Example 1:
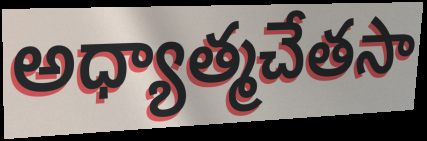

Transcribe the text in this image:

అధ్యాత్మచేతసా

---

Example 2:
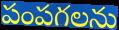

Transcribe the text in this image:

పంపగలను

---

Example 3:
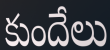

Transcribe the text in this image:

కుందేలు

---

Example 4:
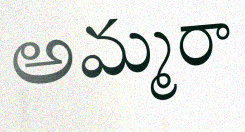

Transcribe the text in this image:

అమ్మరా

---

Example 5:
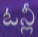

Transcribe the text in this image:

ఓన్లీ